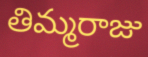
తిమ్మరాజు